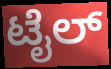
ಟೈಲ್